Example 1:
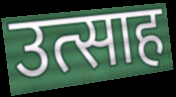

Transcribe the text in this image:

उत्‍साह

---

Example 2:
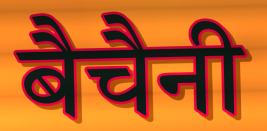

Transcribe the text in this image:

बैचैनी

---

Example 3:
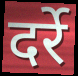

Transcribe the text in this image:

दर्रे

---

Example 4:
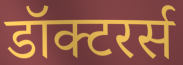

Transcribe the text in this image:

डॉक्टरर्स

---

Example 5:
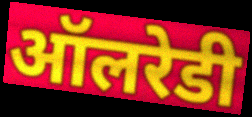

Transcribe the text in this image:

ऑलरेडी